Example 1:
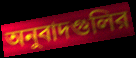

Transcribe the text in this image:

অনুবাদগুলির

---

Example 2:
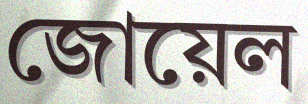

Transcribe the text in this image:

জোয়েল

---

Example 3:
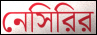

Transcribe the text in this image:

নেসিরির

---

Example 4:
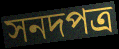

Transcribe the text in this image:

সনদপত্র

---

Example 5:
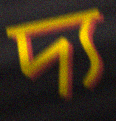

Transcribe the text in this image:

দ্য